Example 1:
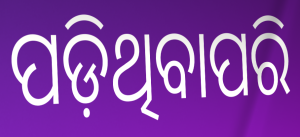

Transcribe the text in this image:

ପଡ଼ିଥିବାପରି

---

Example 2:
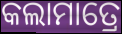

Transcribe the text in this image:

କଲାମାତ୍ରେ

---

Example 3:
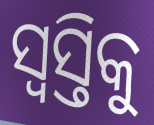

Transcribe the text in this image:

ସ୍ୱସ୍ତିକୁ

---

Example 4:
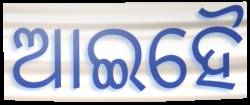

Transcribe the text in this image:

ଆଇହୈ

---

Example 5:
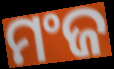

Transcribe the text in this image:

ମଂଜ